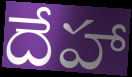
దేహా